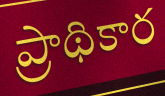
ప్రాథికార